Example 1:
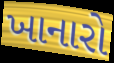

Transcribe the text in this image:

ખાનારો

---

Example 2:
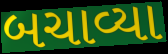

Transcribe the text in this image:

બચાવ્યા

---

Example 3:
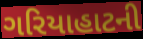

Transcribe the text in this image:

ગરિયાહાટની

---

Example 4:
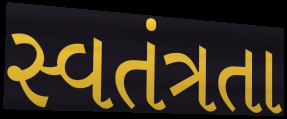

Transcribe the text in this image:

સ્વતંત્રતા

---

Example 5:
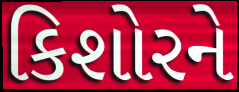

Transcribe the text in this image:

કિશોરને